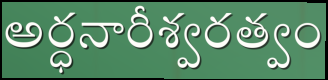
అర్ధనారీశ్వరత్వం